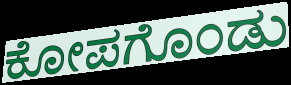
ಕೋಪಗೊಂಡು